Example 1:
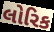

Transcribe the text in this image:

લોરિક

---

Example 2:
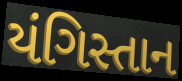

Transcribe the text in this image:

યંગિસ્તાન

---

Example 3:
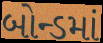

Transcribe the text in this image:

બોન્ડમાં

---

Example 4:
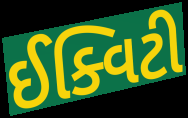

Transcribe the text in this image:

ઈક્વિટી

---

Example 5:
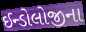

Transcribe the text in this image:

ઈન્ડોલોજીના